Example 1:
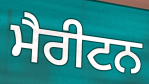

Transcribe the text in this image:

ਮੈਰੀਟਨ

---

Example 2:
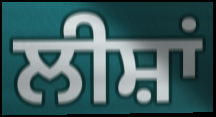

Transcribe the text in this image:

ਲੀਸ਼ਾਂ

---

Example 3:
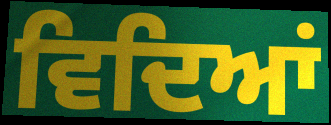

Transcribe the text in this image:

ਵਿਦਿਆਂ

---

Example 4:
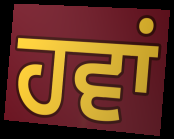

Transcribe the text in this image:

ਹਵਾਂ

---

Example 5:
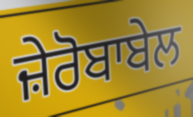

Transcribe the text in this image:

ਜ਼ੇਰੋਬਾਬੇਲ